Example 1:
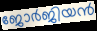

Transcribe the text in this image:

ജോർജിയൻ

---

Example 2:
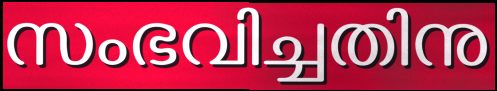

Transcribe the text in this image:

സംഭവിച്ചതിനു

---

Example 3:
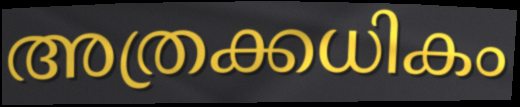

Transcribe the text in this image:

അത്രക്കധികം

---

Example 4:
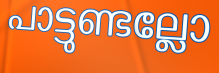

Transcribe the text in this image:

പാട്ടുണ്ടല്ലോ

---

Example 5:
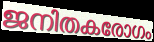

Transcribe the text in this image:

ജനിതകരോഗം